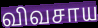
விவசாய